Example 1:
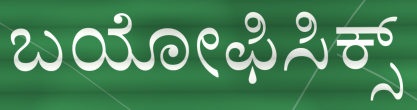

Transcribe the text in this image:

ಬಯೋಫಿಸಿಕ್ಸ್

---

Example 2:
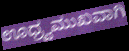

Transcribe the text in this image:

ಊಧ್ರ್ವಮುಖವಾಗಿ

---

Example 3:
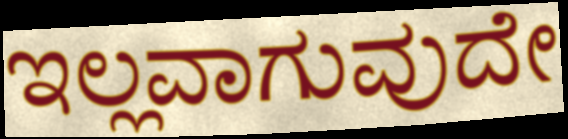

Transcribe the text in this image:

ಇಲ್ಲವಾಗುವುದೇ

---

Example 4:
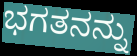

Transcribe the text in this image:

ಭಗತನನ್ನು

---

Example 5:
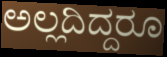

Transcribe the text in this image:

ಅಲ್ಲದಿದ್ದರೂ